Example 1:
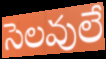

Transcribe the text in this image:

సెలవులే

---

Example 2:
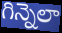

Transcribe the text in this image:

గిన్నెలా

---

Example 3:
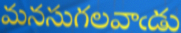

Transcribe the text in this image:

మనసుగలవాఁడు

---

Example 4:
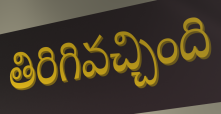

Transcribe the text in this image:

తిరిగివచ్చింది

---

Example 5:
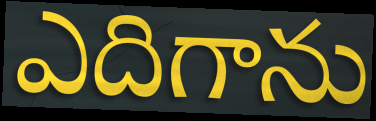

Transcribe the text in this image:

ఎదిగాను